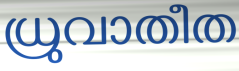
ധ്രുവാതീത